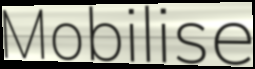
Mobilise